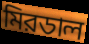
মিরডাল